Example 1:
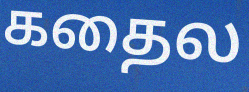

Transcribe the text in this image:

கதைல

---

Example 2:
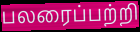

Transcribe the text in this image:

பலரைப்பற்றி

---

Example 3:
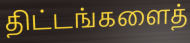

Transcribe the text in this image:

திட்டங்களைத்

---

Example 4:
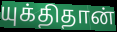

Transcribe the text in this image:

யுக்திதான்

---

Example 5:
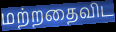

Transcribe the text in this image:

மற்றதைவிட